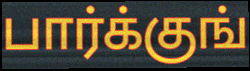
பார்க்குங்